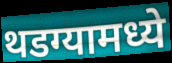
थडग्यामध्ये